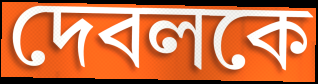
দেবলকে